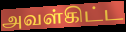
அவள்கிட்ட